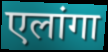
एलांगा